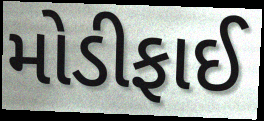
મોડીફાઈ